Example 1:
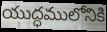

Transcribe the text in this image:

యుద్ధములోనికి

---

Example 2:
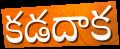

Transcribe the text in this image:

కడదాక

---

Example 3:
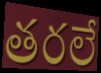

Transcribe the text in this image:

తరలే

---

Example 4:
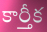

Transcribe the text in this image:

కార్తీక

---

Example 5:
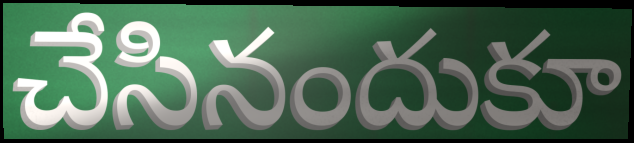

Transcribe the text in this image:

చేసినందుకూ